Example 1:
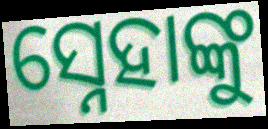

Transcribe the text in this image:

ସ୍ନେହାଙ୍କୁ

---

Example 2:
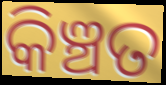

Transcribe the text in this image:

କିଞ୍ଚତ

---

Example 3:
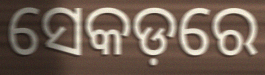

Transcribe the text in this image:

ସେକଡ଼ରେ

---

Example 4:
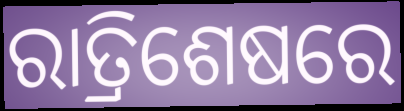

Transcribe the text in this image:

ରାତ୍ରିଶେଷରେ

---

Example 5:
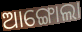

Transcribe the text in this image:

ଆଙ୍ଗୋଲା